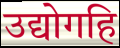
उद्योगहि